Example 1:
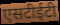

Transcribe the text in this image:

एसटीईटी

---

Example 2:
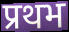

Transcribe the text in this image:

प्रथभ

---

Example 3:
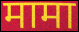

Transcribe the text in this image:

मामा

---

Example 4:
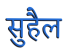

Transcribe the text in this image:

सुहैल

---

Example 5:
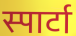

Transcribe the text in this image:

स्पार्टा